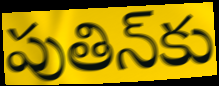
పుతిన్‌కు